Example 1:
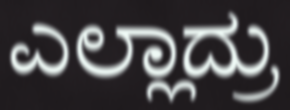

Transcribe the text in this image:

ಎಲ್ಲಾದ್ರು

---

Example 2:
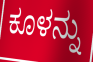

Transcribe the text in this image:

ಕೂಳನ್ನು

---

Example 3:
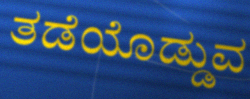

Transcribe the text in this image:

ತಡೆಯೊಡ್ಡುವ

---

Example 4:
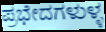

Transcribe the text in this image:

ಪ್ರಭೇದಗಳುಳ್ಳ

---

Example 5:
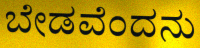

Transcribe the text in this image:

ಬೇಡವೆಂದನು